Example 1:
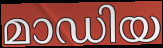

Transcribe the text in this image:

മാഡിയ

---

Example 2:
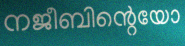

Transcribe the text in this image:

നജീബിന്റെയോ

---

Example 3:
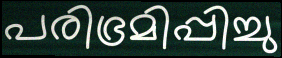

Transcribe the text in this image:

പരിഭ്രമിപ്പിച്ചു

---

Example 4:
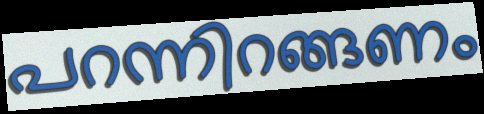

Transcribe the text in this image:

പറന്നിറങ്ങണം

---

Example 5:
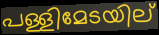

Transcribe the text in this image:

പള്ളിമേടയില്